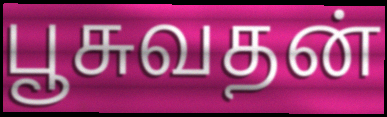
பூசுவதன்